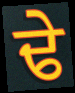
ਢੇ